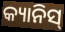
କ୍ୟାନିସ୍